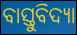
ବାସ୍ତୁବିଦ୍ୟା